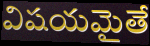
విషయమైతే